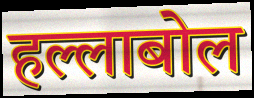
हल्लाबोल